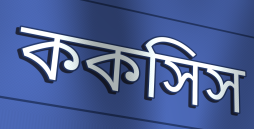
ককসিস